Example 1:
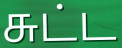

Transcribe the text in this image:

சுட்ட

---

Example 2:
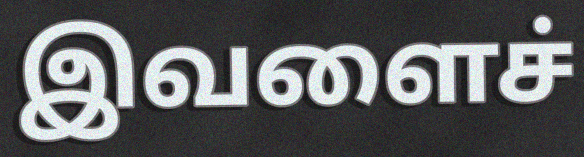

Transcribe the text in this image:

இவளைச்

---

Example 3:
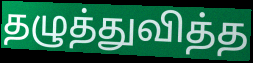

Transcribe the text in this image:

தழுத்துவித்த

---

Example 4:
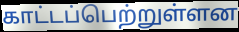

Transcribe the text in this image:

காட்டப்பெற்றுள்ளன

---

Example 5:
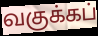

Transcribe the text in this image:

வகுக்கப்